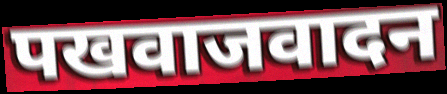
पखवाजवादन